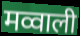
मव्वाली